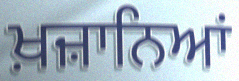
ਖ਼ਜ਼ਾਨਿਆਂ